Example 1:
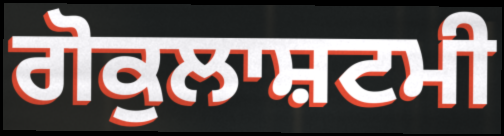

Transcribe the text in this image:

ਗੋਕੁਲਾਸ਼ਟਮੀ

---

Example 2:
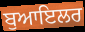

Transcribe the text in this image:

ਬੁਆਇਲਰ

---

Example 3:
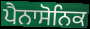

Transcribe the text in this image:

ਪੈਨਾਸੋਨਿਕ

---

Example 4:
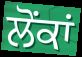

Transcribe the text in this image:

ਲੋਂਕਾਂ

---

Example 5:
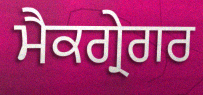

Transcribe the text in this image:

ਮੈਕਗ੍ਰੇਗਰ